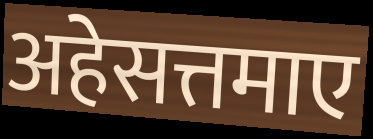
अहेसत्तमाए